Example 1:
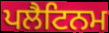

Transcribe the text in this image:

ਪਲੈਟਿਨਮ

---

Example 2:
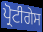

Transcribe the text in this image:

ਪ੍ਰੋਟੀਗੇਸ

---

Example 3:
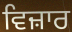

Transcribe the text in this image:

ਵਿਜ਼ਾਰ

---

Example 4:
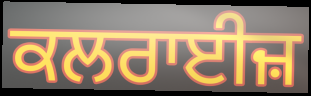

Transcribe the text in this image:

ਕਲਰਾਈਜ਼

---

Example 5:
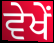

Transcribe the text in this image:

ਵੇਖੇਂ